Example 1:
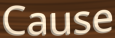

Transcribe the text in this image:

Cause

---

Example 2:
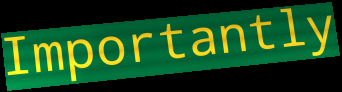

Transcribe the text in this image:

Importantly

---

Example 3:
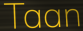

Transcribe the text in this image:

Taan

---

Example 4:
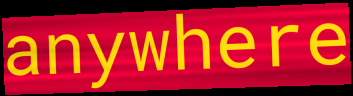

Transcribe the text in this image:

anywhere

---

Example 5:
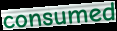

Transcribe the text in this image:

consumed